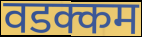
वडक्कम